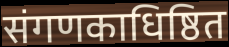
संगणकाधिष्ठित